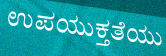
ಉಪಯುಕ್ತತೆಯು